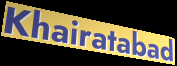
Khairatabad